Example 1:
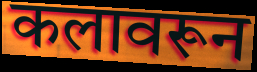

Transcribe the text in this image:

कलावरून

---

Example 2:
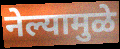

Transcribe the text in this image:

नेल्यामुळे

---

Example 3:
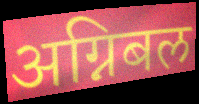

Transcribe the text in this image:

अग्निबल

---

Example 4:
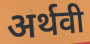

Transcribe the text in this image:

अर्थवी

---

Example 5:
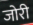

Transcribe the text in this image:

जोरी